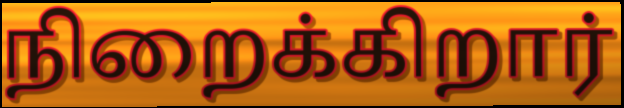
நிறைக்கிறார்